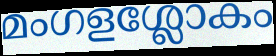
മംഗളശ്ലോകം